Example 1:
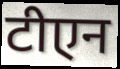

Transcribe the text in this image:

टीएन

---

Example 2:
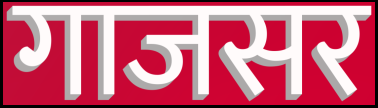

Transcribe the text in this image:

गाजसर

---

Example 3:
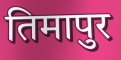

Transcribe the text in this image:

तिमापुर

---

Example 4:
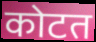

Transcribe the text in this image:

कोटत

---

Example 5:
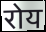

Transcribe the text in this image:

रोय